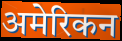
अमेरिकन